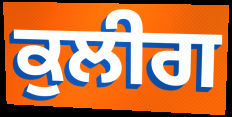
ਕੁਲੀਗ